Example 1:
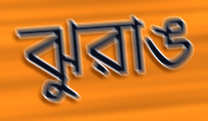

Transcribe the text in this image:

ঝুৱাঙ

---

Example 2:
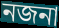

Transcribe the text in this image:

নজনা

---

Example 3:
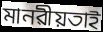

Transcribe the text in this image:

মানৱীয়তাই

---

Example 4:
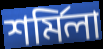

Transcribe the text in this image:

শৰ্মিলা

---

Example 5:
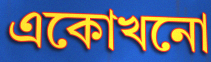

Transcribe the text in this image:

একোখনো